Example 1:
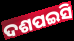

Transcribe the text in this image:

ଦଶପଇସି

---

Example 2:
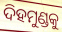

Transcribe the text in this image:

ଦିହମୁଣ୍ଡକୁ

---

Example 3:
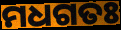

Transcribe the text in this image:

ମଧଗତଃ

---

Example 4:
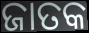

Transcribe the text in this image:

ଜାତକ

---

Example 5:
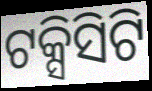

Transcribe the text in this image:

ଟକ୍ସିସିଟି